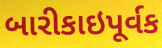
બારીકાઇપૂર્વક